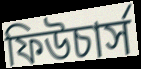
ফিউচার্স